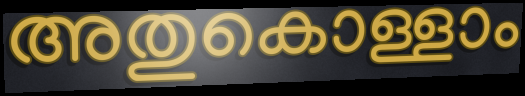
അതുകൊള്ളാം